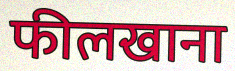
फीलखाना